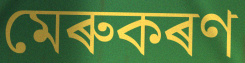
মেৰুকৰণ